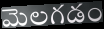
మెలగడం